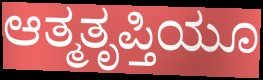
ಆತ್ಮತೃಪ್ತಿಯೂ